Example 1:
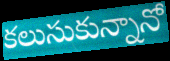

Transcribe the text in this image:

కలుసుకున్నానో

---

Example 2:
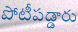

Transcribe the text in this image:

పోటీపడ్డారు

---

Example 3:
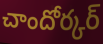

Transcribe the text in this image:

చాందోర్కర్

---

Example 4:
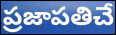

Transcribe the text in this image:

ప్రజాపతిచే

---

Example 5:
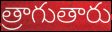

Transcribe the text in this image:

త్రాగుతారు